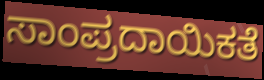
ಸಾಂಪ್ರದಾಯಿಕತೆ